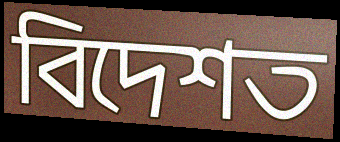
বিদেশত